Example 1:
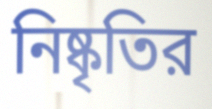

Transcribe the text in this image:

নিষ্কৃতির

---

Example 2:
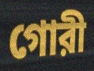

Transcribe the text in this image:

গোরী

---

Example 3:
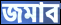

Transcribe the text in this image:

জমাব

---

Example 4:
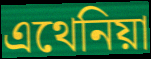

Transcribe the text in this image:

এথেনিয়া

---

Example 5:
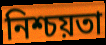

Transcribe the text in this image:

নিশ্চয়তা